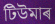
টিউমাৰ